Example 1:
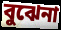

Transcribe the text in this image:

বুঝেনা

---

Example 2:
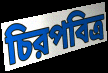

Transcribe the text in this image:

চিরপবিত্র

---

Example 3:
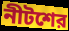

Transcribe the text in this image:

নীটশের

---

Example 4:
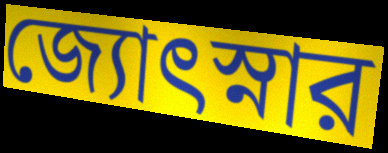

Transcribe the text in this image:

জ্যোৎস্নার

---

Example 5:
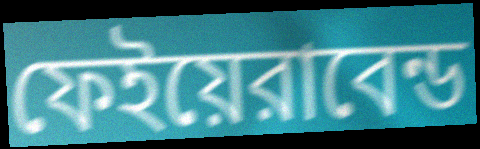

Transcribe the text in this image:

ফেইয়েরাবেন্ড